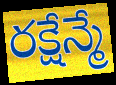
రక్షేన్మే